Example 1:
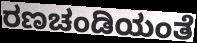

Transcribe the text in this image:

ರಣಚಂಡಿಯಂತೆ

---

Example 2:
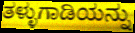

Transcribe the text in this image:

ತಳ್ಳುಗಾಡಿಯನ್ನು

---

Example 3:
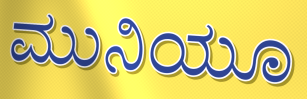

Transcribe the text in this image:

ಮುನಿಯೂ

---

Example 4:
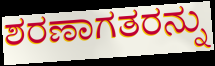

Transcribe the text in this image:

ಶರಣಾಗತರನ್ನು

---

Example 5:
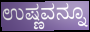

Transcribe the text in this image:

ಉಷ್ಣವನ್ನೂ